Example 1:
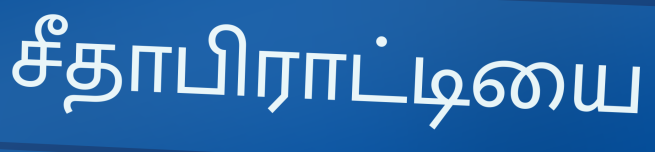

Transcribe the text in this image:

சீதாபிராட்டியை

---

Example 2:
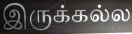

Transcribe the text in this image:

இருக்கல்ல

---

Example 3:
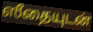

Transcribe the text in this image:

ஸீதையுடன்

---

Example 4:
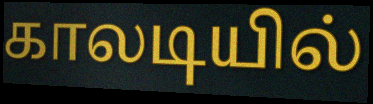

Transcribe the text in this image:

காலடியில்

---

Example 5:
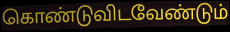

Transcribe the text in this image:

கொண்டுவிடவேண்டும்